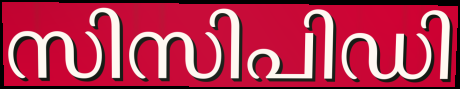
സിസിപിഡി